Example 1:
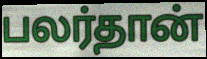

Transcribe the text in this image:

பலர்தான்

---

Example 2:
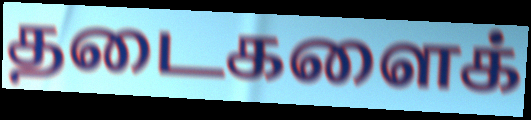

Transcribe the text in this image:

தடைகளைக்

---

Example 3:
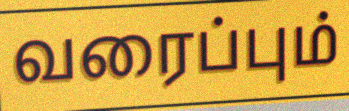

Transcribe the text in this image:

வரைப்பும்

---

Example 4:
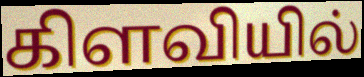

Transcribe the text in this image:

கிளவியில்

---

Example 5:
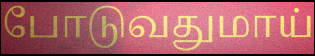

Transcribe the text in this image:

போடுவதுமாய்